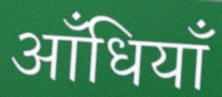
आँधियाँ